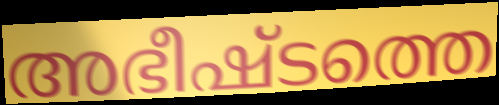
അഭീഷ്ടത്തെ